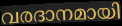
വരദാനമായി